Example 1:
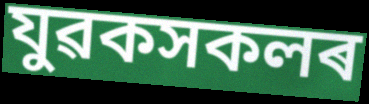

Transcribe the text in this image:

যুৱকসকলৰ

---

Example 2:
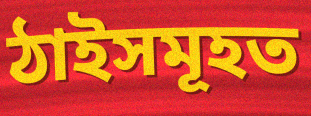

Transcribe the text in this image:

ঠাইসমূহত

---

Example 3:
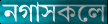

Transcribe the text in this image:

নগাসকলে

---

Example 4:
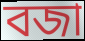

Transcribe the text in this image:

বজা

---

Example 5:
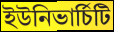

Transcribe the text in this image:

ইউনিভাৰ্চিটি